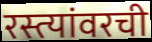
रस्त्यांवरची